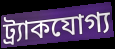
ট্র্যাকযোগ্য